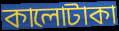
কালোটাকা